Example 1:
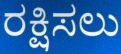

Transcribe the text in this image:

ರಕ್ಷಿಸಲು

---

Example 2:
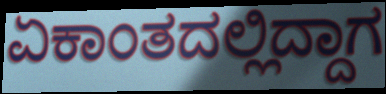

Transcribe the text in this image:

ಏಕಾಂತದಲ್ಲಿದ್ದಾಗ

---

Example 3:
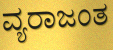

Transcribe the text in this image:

ವ್ಯರಾಜಂತ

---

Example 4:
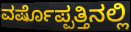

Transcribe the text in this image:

ವರ್ಷೊಪ್ಪತ್ತಿನಲ್ಲಿ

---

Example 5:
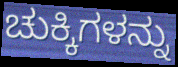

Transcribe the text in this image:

ಚುಕ್ಕಿಗಳನ್ನು